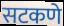
सटकणे